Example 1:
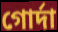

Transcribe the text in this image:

গোর্দা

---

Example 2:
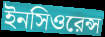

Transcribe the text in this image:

ইনসিওরেন্স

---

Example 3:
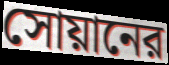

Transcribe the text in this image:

সোয়ানের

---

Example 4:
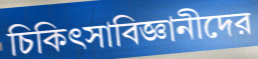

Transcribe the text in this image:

চিকিৎসাবিজ্ঞানীদের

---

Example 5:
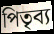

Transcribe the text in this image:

পিতৃব্য